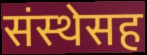
संस्थेसह